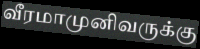
வீரமாமுனிவருக்கு